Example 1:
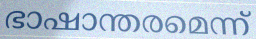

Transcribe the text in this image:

ഭാഷാന്തരമെന്ന്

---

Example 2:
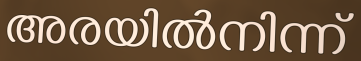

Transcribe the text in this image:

അരയിൽനിന്ന്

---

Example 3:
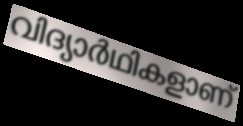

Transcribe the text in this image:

വിദ്യാർഥികളാണ്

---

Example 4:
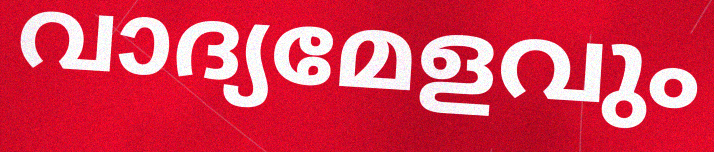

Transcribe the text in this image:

വാദ്യമേളവും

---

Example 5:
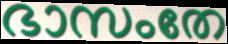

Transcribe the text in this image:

ഭാസംതേ